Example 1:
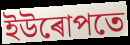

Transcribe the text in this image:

ইউৰোপতে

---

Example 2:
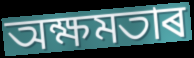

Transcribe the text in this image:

অক্ষমতাৰ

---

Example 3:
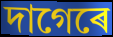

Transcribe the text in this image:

দাগেৰে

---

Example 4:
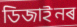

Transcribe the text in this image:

ডিজাইনৰ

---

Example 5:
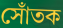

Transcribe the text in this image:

সোঁতক